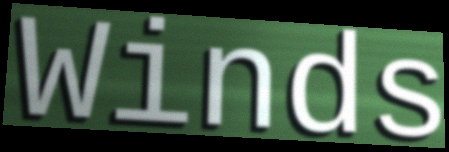
Winds